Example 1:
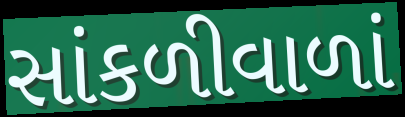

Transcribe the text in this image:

સાંકળીવાળાં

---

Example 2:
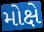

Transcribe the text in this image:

મોક્ષે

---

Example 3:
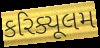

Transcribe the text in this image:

કરિક્યૂલમ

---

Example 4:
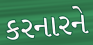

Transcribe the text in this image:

કરનારને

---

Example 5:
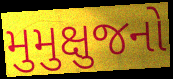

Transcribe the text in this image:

મુમુક્ષુજનો